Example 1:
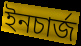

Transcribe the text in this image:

ইনচার্জ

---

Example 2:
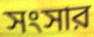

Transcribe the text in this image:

সংসার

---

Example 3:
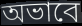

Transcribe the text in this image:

অভাবে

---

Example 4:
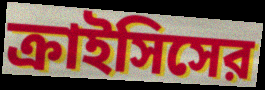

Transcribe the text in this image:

ক্রাইসিসের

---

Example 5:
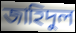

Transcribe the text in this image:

জাহিদুল